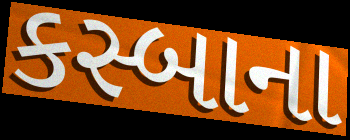
કસ્બાના